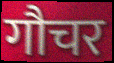
गौचर